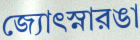
জ্যোৎস্নারঙা